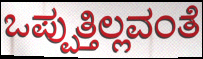
ಒಪ್ಪುತ್ತಿಲ್ಲವಂತೆ